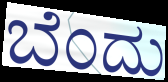
ಬೆಂದು